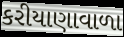
કરીયાણાવાળા